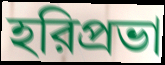
হরিপ্রভা